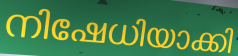
നിഷേധിയാക്കി